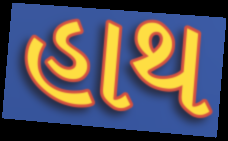
હાથ